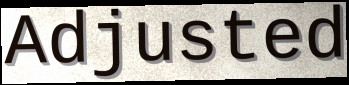
Adjusted